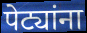
पेट्यांना